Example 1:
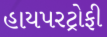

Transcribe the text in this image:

હાયપરટ્રોફી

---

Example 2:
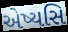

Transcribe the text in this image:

એષ્યસિ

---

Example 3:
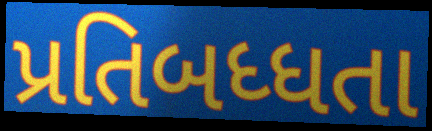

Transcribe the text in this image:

પ્રતિબધ્ધતા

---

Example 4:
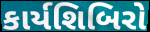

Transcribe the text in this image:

કાર્યશિબિરો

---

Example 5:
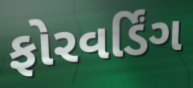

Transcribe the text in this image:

ફોરવર્ડિંગ